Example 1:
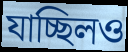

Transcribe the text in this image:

যাচ্ছিলও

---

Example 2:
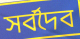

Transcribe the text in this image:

সর্বদৈব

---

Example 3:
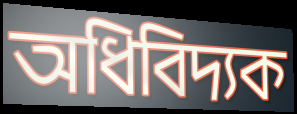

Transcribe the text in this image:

অধিবিদ্যক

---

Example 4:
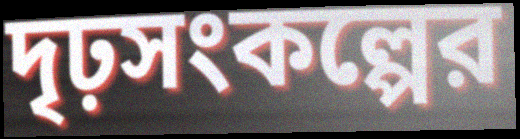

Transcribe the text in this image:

দৃঢ়সংকল্পের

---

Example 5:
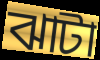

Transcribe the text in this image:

ঝাটা